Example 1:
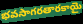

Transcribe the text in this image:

భవసాగరతారకాయై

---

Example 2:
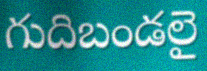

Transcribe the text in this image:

గుదిబండలై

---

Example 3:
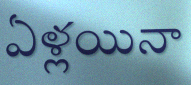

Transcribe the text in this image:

ఏళ్లయినా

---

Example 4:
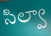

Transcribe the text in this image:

సిల్వా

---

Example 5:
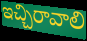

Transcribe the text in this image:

ఇచ్చిరావాలి